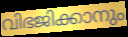
വിഭജിക്കാനും